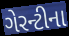
ગેરન્ટીના